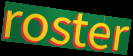
roster